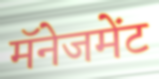
मॅनेजमेंट